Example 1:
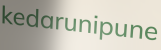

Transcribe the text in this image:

kedarunipune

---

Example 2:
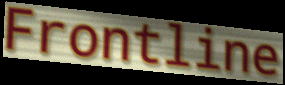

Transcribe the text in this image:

Frontline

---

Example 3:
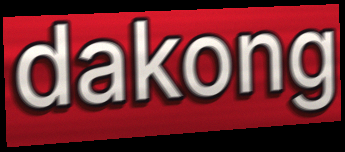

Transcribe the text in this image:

dakong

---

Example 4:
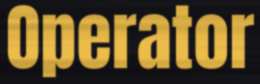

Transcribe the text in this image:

Operator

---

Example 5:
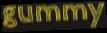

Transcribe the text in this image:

gummy